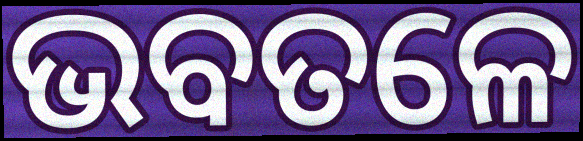
ଭବତଳେ